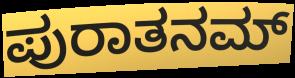
ಪುರಾತನಮ್